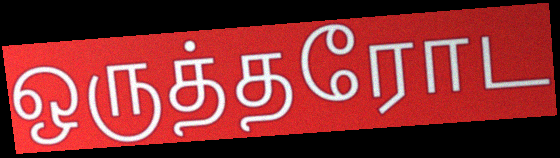
ஒருத்தரோட